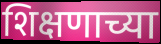
शिक्षणाच्या